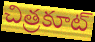
చిత్రకూట్